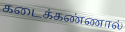
கடைக்கண்ணால்